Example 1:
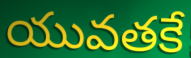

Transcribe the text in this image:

యువతకే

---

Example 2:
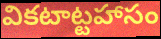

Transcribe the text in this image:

వికటాట్టహాసం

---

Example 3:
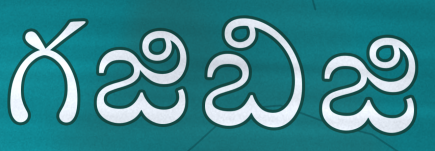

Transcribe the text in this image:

గజిబిజి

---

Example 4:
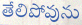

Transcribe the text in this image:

తేలిపోవును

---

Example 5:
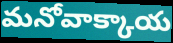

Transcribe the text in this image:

మనోవాక్కాయ